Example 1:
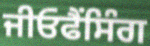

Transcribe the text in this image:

ਜੀਓਫੈਂਸਿੰਗ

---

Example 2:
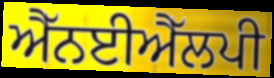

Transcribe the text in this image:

ਐੱਨਈਐੱਲਪੀ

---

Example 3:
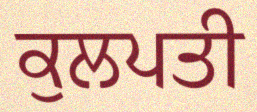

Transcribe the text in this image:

ਕੁਲਪਤੀ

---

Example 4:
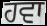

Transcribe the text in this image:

ਹਵਾ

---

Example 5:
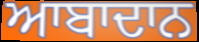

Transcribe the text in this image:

ਆਬਾਦਾਨ